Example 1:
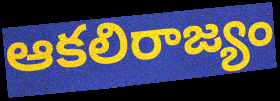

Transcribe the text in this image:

ఆకలిరాజ్యం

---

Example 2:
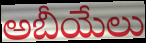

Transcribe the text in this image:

అబీయేలు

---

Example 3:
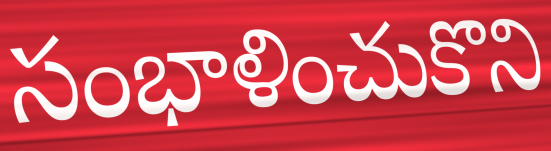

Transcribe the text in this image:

సంభాళించుకొని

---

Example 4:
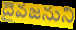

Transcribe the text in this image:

దైవజనుని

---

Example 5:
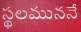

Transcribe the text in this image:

స్థలముననే